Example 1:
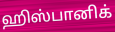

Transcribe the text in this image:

ஹிஸ்பானிக்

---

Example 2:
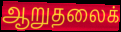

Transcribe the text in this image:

ஆறுதலைக்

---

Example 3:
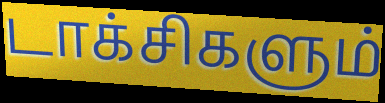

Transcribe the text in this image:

டாக்சிகளும்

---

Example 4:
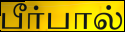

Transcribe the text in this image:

பீர்பால்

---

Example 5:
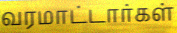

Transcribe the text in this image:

வரமாட்டார்கள்